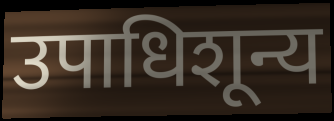
उपाधिशून्य